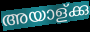
അയാള്ക്കു